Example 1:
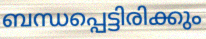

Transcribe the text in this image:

ബന്ധപ്പെട്ടിരിക്കും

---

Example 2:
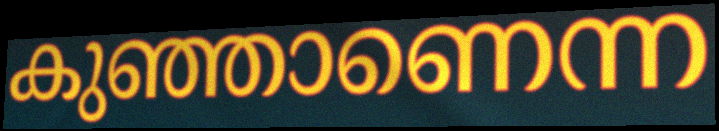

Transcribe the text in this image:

കുഞ്ഞാണെന്ന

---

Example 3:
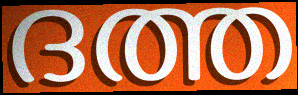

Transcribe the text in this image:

ദത്ത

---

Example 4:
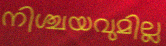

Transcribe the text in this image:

നിശ്ചയവുമില്ല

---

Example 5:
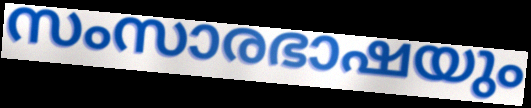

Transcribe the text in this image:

സംസാരഭാഷയും